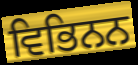
ਵਿਭਿਨਨ